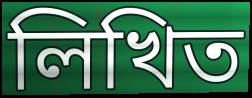
লিখিত